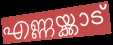
എണ്ണയ്ക്കാട്